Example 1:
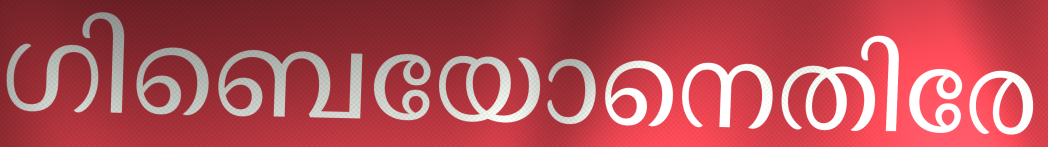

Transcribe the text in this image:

ഗിബെയോനെതിരേ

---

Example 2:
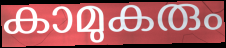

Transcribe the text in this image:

കാമുകരും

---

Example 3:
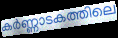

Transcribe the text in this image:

കർണ്ണാടകത്തിലെ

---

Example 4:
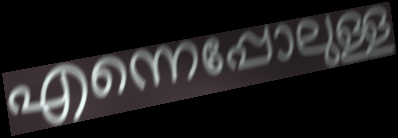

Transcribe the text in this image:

എന്നെപ്പോലുള്ള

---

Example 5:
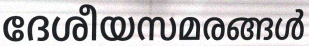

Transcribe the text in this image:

ദേശീയസമരങ്ങൾ